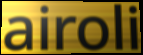
airoli